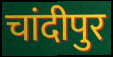
चांदीपुर